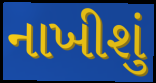
નાખીશું